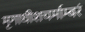
मृगाधीशचर्माम्बरं